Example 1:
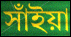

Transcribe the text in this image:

সাঁইয়া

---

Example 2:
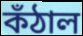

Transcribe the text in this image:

কঁঠাল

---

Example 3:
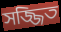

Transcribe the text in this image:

সজ্জিত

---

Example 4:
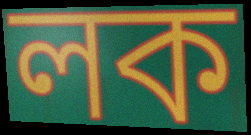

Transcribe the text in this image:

লক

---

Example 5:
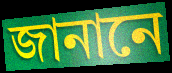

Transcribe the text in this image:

জানানে